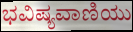
ಭವಿಷ್ಯವಾಣಿಯು